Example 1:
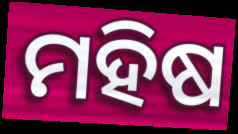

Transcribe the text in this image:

ମହିଷ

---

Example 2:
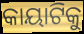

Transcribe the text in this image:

କାୟାଟିକୁ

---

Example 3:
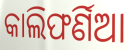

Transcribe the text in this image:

କାଲିଫର୍ଣିଆ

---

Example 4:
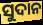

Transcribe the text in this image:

ସୁଦାନ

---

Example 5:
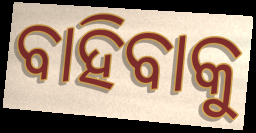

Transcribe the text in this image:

ବାହିବାକୁ